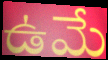
ఉమే